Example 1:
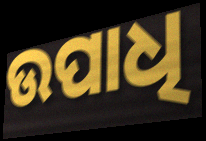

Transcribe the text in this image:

ଉପାଧି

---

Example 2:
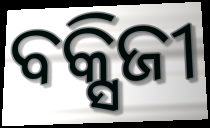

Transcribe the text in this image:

ବକ୍ସିଜୀ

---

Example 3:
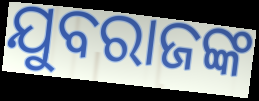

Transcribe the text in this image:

ଯୁବରାଜଙ୍କ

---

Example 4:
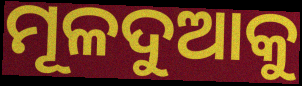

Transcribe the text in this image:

ମୂଳଦୁଆକୁ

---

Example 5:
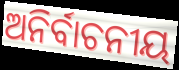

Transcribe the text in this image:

ଅନିର୍ବାଚନୀୟ